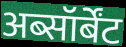
अब्सॉर्बेंट